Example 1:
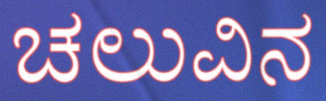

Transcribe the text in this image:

ಚಲುವಿನ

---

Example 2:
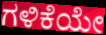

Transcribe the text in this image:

ಗಳಿಕೆಯೇ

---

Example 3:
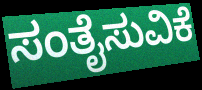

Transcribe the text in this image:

ಸಂತೈಸುವಿಕೆ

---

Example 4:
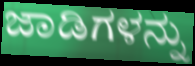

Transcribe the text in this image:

ಜಾಡಿಗಳನ್ನು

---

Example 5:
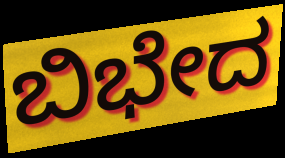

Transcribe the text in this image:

ಬಿಭೇದ